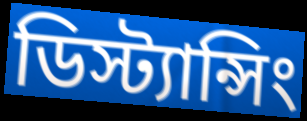
ডিস্ট্যান্সিং